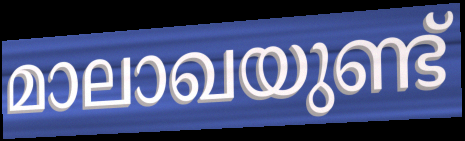
മാലാഖയുണ്ട്